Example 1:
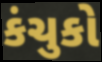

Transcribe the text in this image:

કંચુકો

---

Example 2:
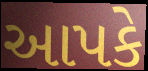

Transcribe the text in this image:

આપકે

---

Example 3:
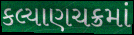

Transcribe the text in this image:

કલ્યાણચક્રમાં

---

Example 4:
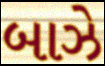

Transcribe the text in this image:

બાઝે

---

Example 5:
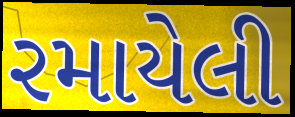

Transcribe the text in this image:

રમાયેલી